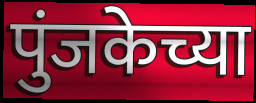
पुंजकेच्या